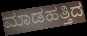
ಮಾಡಹತ್ತಿದ